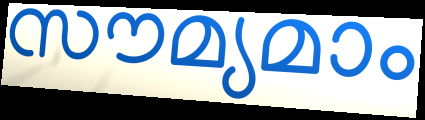
സൗമ്യമാം